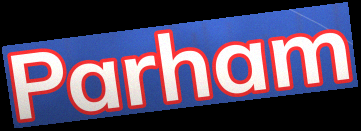
Parham